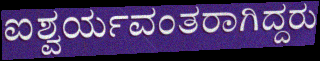
ಐಶ್ವರ್ಯವಂತರಾಗಿದ್ದರು